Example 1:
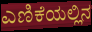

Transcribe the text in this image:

ಎಣಿಕೆಯಲ್ಲಿನ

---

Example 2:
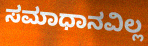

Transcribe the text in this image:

ಸಮಾಧಾನವಿಲ್ಲ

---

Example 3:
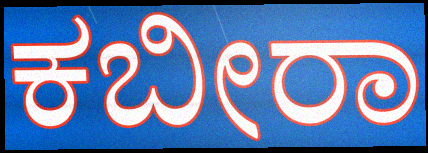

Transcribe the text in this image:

ಕಬೀರಾ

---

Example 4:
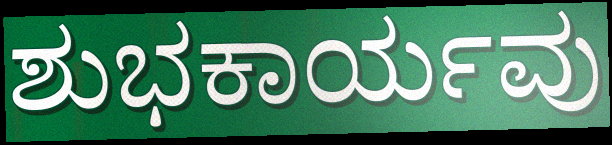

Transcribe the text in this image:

ಶುಭಕಾರ್ಯವು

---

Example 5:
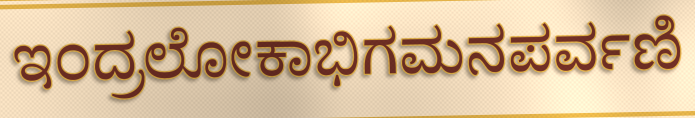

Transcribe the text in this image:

ಇಂದ್ರಲೋಕಾಭಿಗಮನಪರ್ವಣಿ